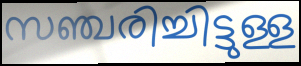
സഞ്ചരിച്ചിട്ടുള്ള